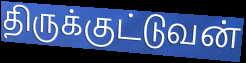
திருக்குட்டுவன்